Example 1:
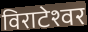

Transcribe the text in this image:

विराटेश्वर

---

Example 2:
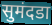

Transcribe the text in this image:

सुमंदडा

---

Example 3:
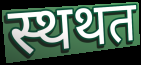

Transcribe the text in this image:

स्थथत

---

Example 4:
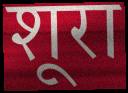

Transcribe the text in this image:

शूरा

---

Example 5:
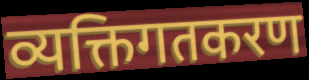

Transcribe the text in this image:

व्यक्तिगतकरण